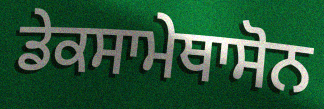
ਡੇਕਸਾਮੇਥਾਸੋਨ